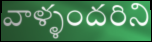
వాళ్ళందరిని